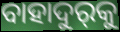
ବାହାଦୁର୍‌କୁ